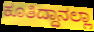
ಕೂತಿದ್ದಾನಲ್ಲಾ